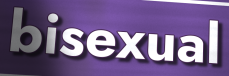
bisexual